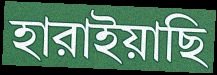
হারাইয়াছি